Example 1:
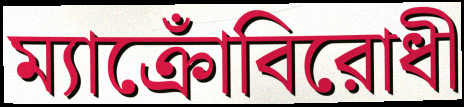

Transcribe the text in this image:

ম্যাক্রোঁবিরোধী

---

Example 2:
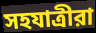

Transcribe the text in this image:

সহযাত্রীরা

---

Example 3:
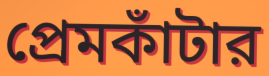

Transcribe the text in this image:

প্রেমকাঁটার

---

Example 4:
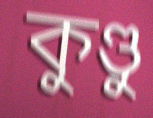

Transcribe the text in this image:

কুণ্ডু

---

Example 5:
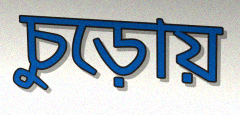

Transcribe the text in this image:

চুড়োয়